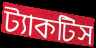
ট্যাকটিস